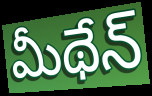
మీథేన్